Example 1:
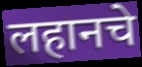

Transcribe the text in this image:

लहानचे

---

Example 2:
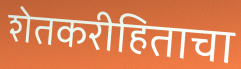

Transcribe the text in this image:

शेतकरीहिताचा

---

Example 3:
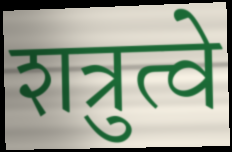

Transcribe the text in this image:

शत्रुत्वे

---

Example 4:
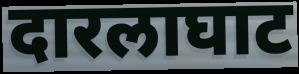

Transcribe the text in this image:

दारलाघाट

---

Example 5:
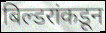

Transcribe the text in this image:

बिल्डरांकडून